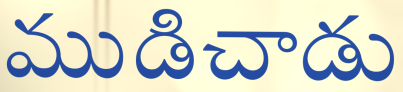
ముడిచాడు